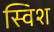
स्विश